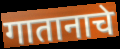
गातानाचे